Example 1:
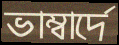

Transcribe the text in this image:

ভাম্বাৰ্দে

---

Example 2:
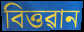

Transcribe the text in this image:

বিত্তৱান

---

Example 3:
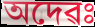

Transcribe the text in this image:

অদেৱঃ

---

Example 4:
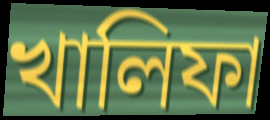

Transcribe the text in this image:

খালিফা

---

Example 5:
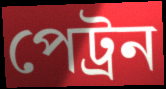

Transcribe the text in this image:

পেট্ৰন